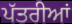
ਪੱਤਰੀਆਂ